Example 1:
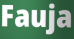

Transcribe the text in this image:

Fauja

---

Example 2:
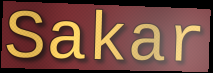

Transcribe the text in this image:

Sakar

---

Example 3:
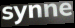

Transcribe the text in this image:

synne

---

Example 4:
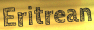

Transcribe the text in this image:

Eritrean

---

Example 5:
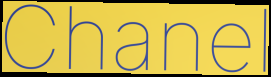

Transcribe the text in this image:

Chanel